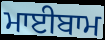
ਮਾਈਬਾਮ